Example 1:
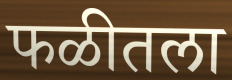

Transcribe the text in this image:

फळीतला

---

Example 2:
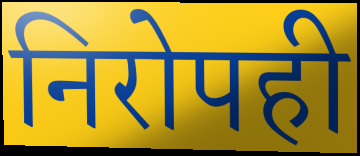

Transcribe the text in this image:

निरोपही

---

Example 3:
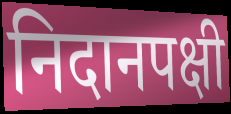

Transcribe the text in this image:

निदानपक्षी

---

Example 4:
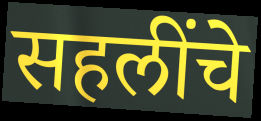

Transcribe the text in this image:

सहलींचे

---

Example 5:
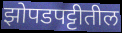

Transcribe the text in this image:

झोपडपट्टीतील